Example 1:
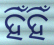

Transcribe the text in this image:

ହିଁହିଁ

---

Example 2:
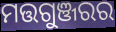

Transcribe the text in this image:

ମତ୍ତଗୁଞ୍ଜରର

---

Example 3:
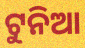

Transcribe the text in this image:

ଟୁନିଆ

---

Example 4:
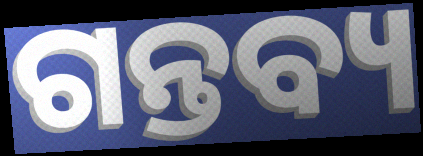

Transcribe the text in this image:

ଗନ୍ତବ୍ୟ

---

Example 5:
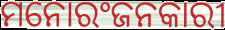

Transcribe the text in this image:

ମନୋରଂଜନକାରୀ